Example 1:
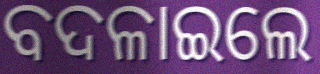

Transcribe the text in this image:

ବଦଳାଇଲେ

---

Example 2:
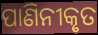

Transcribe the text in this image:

ପାଣିନୀକୃତ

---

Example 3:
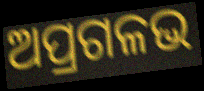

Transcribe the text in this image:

ଅପ୍ରଗଳଭ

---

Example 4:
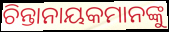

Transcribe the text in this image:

ଚିନ୍ତାନାୟକମାନଙ୍କୁ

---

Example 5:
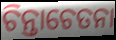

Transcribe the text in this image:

ଚିନ୍ତାଚେତନା